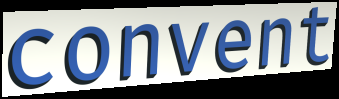
convent